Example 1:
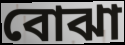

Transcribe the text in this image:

বোঝা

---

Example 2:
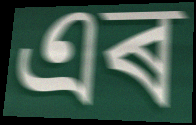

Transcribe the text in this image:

এৰ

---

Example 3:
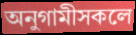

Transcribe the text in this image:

অনুগামীসকলে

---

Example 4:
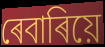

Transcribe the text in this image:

ৰেবাৰিয়ে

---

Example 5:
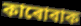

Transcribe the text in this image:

কাৰোবাক